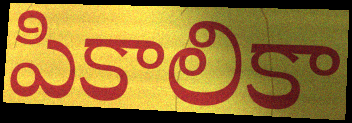
పికాలికా